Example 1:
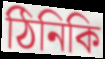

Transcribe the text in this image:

ঠিনিকি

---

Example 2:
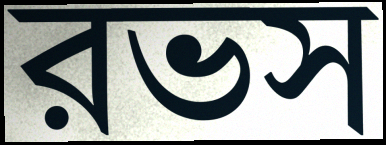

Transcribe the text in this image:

রভস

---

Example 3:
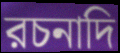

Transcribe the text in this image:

রচনাদি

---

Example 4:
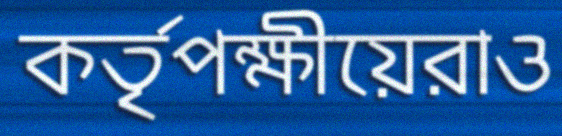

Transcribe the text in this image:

কর্তৃপক্ষীয়েরাও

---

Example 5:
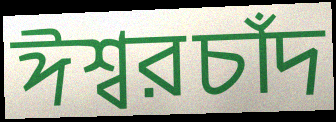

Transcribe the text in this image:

ঈশ্বরচাঁদ